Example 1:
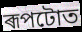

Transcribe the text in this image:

ৰূপটোত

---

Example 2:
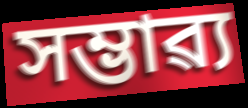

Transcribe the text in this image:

সম্ভাৱ্য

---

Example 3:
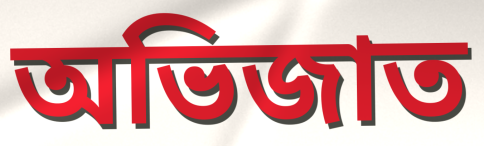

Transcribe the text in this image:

অভিজাত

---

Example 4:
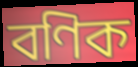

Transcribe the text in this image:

বণিক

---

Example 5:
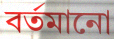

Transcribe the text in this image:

বৰ্তমানো